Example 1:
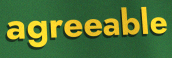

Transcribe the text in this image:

agreeable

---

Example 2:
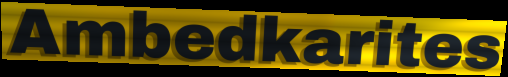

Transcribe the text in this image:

Ambedkarites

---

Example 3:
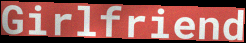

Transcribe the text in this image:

Girlfriend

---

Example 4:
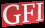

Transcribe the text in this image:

GFI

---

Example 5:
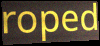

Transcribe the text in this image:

roped